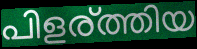
പിളര്ത്തിയ